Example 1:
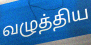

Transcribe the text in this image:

வழுத்திய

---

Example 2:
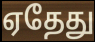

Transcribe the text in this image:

ஏதேது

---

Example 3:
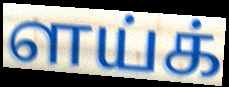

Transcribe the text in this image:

ளய்க்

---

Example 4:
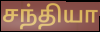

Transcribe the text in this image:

சந்தியா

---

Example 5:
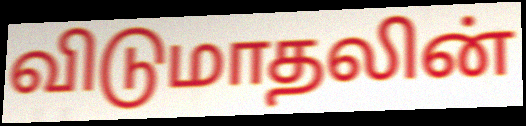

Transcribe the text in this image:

விடுமாதலின்